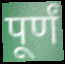
पूर्णं